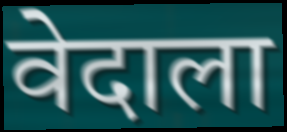
वेदाला